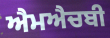
ਐਮਐਚਬੀ